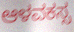
ಆಳವಕಸ್ಸ